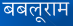
बबलूराम